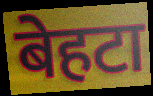
बेहटा